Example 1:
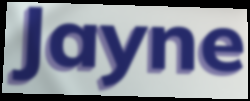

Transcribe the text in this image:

Jayne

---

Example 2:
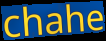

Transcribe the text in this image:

chahe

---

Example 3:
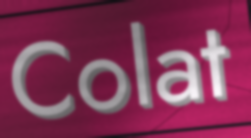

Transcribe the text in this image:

Colat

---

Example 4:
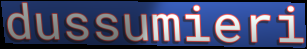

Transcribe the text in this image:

dussumieri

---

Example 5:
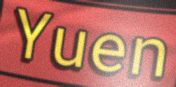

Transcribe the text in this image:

Yuen